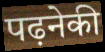
पढ़नेकी